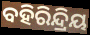
ବହିରିନ୍ଦ୍ରିୟ